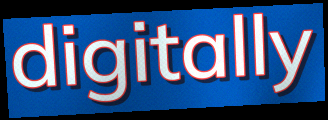
digitally